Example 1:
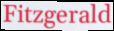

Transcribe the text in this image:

Fitzgerald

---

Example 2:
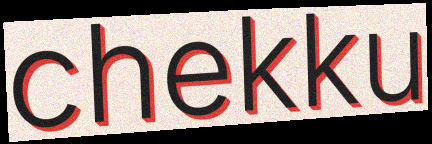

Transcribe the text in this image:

chekku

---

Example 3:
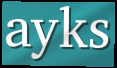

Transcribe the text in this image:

ayks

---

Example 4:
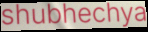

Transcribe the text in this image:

shubhechya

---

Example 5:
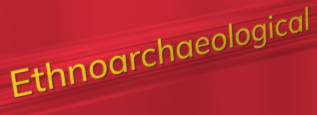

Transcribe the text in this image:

Ethnoarchaeological